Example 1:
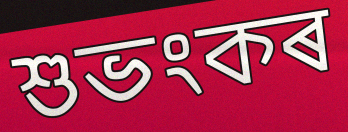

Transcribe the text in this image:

শুভংকৰ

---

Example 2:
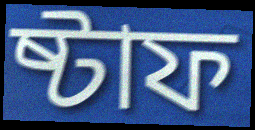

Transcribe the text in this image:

ষ্টাফ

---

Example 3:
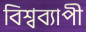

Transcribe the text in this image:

বিশ্বব্যাপী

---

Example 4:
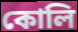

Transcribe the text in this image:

কোলি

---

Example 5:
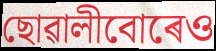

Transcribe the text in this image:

ছোৱালীবোৰেও